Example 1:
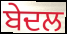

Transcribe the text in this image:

ਬੇਦਲ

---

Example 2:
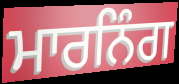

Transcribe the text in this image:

ਮਾਰਨਿੰਗ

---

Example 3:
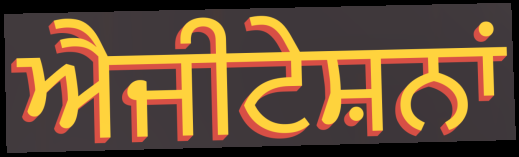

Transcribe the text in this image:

ਐਜੀਟੇਸ਼ਨਾਂ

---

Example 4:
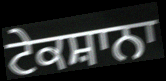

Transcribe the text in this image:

ਟੇਕਸ਼ਾਨਾ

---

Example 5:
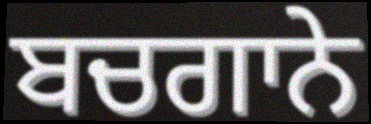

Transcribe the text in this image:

ਬਚਗਾਨੇ